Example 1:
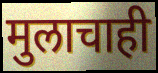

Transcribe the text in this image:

मुलाचाही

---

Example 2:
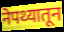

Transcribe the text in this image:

नेपथ्यातून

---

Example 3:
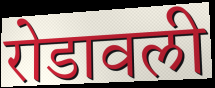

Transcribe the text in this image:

रोडावली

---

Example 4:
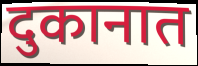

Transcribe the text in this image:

दुकानात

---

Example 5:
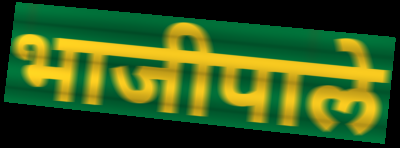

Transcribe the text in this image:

भाजीपाले